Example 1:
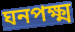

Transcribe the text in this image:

ঘনপক্ষ্ম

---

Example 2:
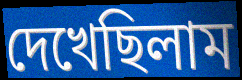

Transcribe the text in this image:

দেখেছিলাম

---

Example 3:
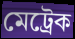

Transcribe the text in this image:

মেট্রেক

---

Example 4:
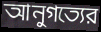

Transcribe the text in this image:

আনুগত্যের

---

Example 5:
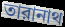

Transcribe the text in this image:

তারানাথ